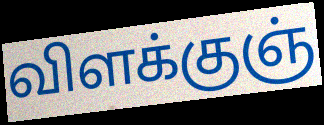
விளக்குஞ்